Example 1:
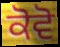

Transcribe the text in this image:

ਕੋਵੋ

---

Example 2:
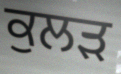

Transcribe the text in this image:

ਕੁਲੜ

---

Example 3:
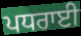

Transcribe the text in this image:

ਪਧਰਾਈ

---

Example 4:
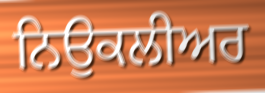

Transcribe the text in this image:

ਨਿਉਕਲੀਅਰ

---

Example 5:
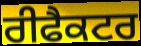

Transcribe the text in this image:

ਰੀਫੈਕਟਰ